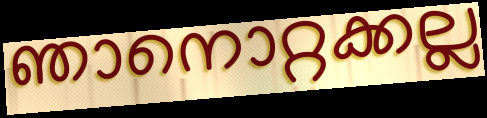
ഞാനൊറ്റക്കല്ല